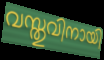
വസ്തുവിനായി